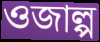
ওজাল্প